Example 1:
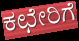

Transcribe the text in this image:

ಕಛೇರಿಗೆ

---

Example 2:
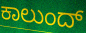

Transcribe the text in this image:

ಕಾಲುಂದ್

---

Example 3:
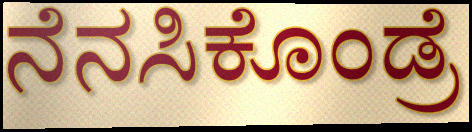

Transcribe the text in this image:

ನೆನಸಿಕೊಂಡ್ರೆ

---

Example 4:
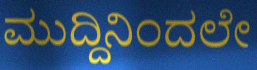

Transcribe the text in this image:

ಮುದ್ದಿನಿಂದಲೇ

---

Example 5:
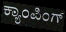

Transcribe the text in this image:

ಕ್ಯಾಂಪಿಂಗ್